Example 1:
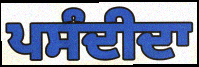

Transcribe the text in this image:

ਪਸੰਦੀਦਾ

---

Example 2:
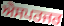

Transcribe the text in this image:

ਐਸਪਰਜਰ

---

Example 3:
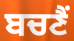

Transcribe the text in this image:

ਬਚਣੈਂ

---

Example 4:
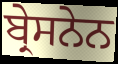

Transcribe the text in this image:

ਬ੍ਰੇਸਨੇਨ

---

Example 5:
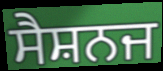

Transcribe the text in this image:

ਸੈਸ਼ਨਜ